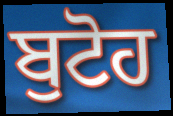
ਬੁਟੋਹ